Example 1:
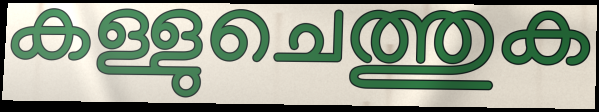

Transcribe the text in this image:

കള്ളുചെത്തുക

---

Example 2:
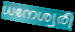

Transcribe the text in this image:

ധനേശ്വരീ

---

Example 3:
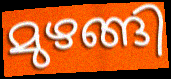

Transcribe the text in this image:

മുഴങ്ങി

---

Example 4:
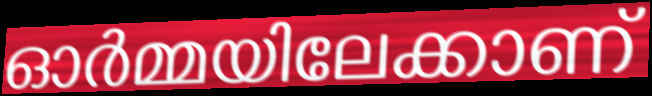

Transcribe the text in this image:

ഓർമ്മയിലേക്കാണ്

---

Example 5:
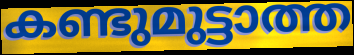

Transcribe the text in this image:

കണ്ടുമുട്ടാത്ത